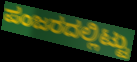
ಪಂಜರದಲ್ಲಿಟ್ಟು